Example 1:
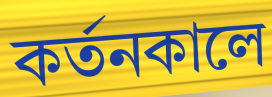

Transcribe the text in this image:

কর্তনকালে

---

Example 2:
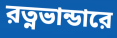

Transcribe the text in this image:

রত্নভান্ডারে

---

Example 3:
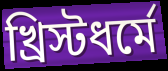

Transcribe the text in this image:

খ্রিস্টধর্মে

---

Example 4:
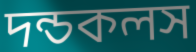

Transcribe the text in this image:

দন্ডকলস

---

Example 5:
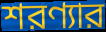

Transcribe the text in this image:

শরণ্যার